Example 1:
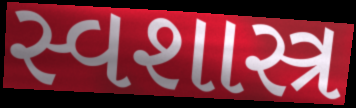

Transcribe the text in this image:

સ્વશાસ્ત્ર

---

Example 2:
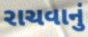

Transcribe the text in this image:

રાચવાનું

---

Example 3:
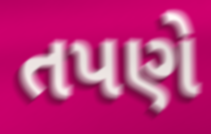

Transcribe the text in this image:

તપણે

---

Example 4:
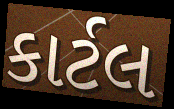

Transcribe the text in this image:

કાર્ટલ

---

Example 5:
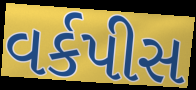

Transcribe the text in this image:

વર્કપીસ